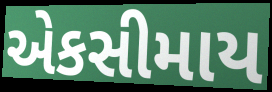
એકસીમાય